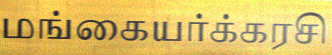
மங்கையர்க்கரசி